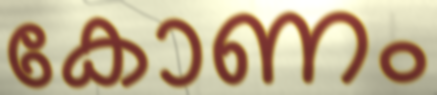
കോണം